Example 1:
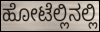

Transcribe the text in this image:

ಹೋಟೆಲ್ಲಿನಲ್ಲಿ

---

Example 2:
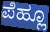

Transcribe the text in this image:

ಪೆಹ್ಲೂ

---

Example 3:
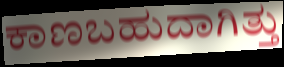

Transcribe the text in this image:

ಕಾಣಬಹುದಾಗಿತ್ತು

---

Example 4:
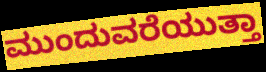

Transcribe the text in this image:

ಮುಂದುವರೆಯುತ್ತಾ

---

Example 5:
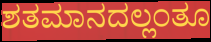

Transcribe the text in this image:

ಶತಮಾನದಲ್ಲಂತೂ